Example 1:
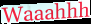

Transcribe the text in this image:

Waaahhh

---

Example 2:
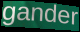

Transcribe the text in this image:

gander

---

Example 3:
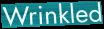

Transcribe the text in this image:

Wrinkled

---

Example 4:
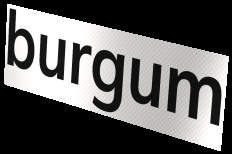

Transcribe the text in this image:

burgum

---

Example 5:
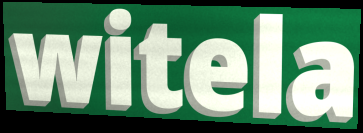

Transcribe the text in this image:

witela